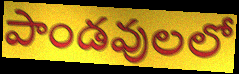
పాండవులలో